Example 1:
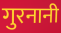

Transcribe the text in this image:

गुरनानी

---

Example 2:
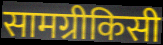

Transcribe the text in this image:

सामग्रीकिसी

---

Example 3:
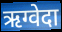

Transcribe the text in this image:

ऋग्वेदा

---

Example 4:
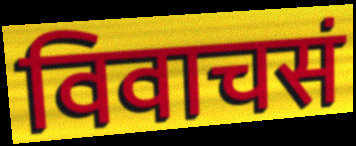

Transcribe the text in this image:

विवाचसं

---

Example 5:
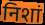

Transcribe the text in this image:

निशां